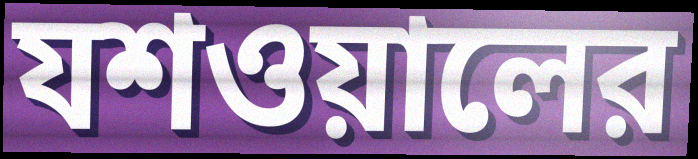
যশওয়ালের